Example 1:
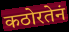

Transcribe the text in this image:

कठोरतेनं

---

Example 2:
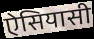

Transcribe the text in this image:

ऐसियासी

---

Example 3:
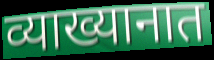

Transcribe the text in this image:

व्याख्यानात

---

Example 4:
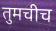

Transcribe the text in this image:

तुमचीच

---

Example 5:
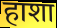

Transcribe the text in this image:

हाशा